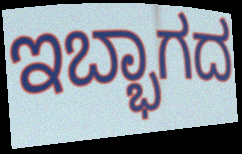
ಇಬ್ಭಾಗದ